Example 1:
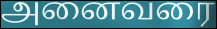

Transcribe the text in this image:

அனைவரை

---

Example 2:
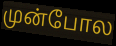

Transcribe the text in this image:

முன்போல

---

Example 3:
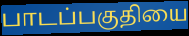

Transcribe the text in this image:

பாடப்பகுதியை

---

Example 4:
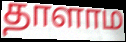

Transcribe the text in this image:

தாளாம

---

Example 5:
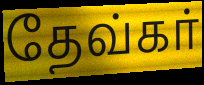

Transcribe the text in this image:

தேவ்கர்